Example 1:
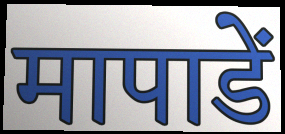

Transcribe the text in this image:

मापाडें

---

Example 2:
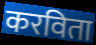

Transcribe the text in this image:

करविता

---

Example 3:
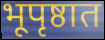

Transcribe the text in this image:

भूपृष्ठात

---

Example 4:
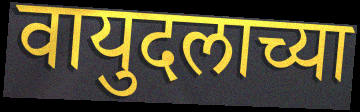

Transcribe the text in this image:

वायुदलाच्या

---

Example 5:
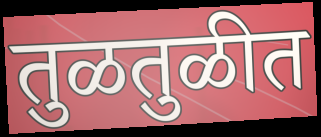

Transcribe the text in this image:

तुळतुळीत